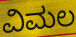
ವಿಮಲ